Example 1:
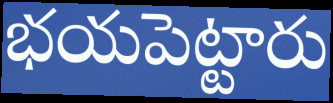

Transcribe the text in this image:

భయపెట్టారు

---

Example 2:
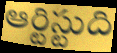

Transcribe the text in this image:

ఆర్టిస్టుది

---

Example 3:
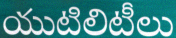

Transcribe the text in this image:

యుటిలిటీలు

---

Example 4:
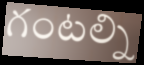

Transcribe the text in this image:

గంటల్ని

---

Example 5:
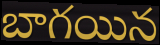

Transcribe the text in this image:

బాగయిన